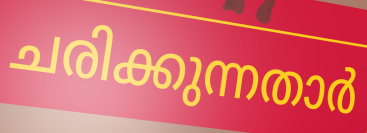
ചരിക്കുന്നതാർ